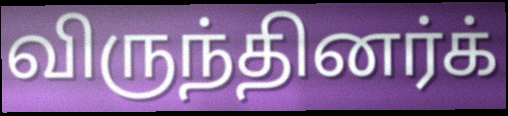
விருந்தினர்க்